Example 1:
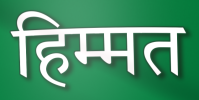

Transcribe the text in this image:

हिम्‍मत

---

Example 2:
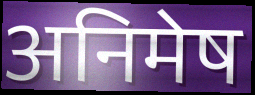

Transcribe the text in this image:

अनिमेष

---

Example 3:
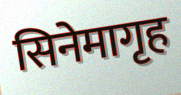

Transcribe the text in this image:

सिनेमागृह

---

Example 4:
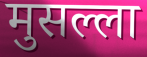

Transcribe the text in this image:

मुसल्ला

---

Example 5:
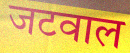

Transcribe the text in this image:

जटवाल